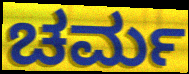
ಚರ್ಮ